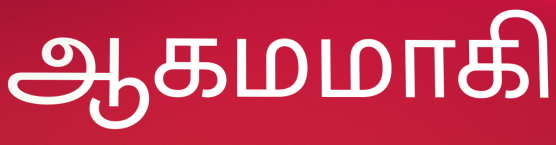
ஆகமமாகி